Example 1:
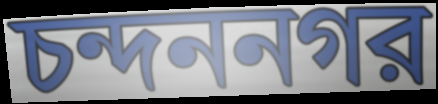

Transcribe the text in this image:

চন্দননগর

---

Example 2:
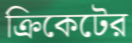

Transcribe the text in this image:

ক্রিকেটের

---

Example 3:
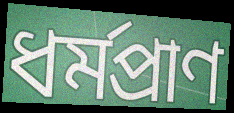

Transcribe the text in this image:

ধর্মপ্রাণ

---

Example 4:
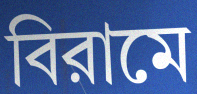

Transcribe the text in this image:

বিরামে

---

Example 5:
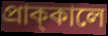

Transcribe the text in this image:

প্রাক্‌কালে